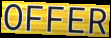
OFFER